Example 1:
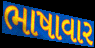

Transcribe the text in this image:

ભાષાવાર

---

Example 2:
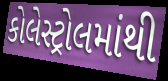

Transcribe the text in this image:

કોલેસ્ટ્રોલમાંથી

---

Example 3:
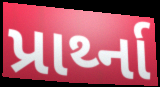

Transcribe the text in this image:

પ્રાર્થ્ના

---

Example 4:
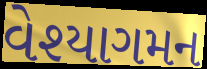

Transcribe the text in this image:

વેશ્યાગમન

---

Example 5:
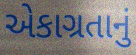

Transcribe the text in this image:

એકાગ્રતાનું